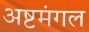
अष्टमंगल